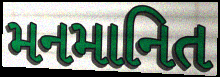
મનમાનિત